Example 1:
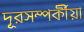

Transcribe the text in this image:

দূরসম্পর্কীয়া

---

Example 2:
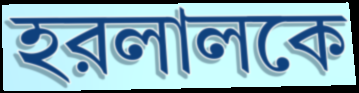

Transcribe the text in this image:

হরলালকে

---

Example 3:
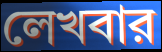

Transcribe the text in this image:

লেখবার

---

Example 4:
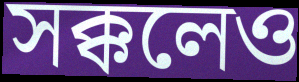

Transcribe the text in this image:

সক্কলেও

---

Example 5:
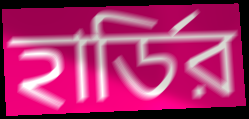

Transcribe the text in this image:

হার্ডির